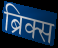
ब्रिक्स